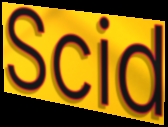
Scid